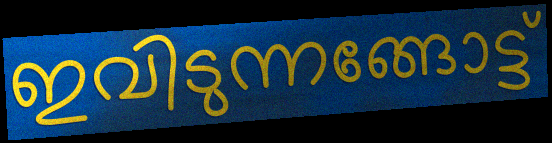
ഇവിടുന്നങ്ങോട്ട്